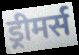
ड्रीमर्स